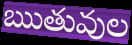
ఋతువుల